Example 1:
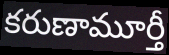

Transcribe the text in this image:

కరుణామూర్తీ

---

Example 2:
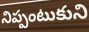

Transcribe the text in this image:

నిప్పంటుకుని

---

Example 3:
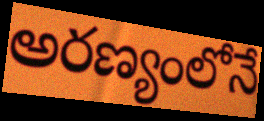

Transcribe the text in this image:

అరణ్యంలోనే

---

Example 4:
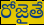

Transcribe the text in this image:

రోజైతే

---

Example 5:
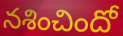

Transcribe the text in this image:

నశించిందో